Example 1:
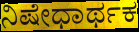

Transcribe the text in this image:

ನಿಷೇಧಾರ್ಥಕ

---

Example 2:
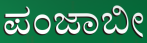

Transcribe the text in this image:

ಪಂಜಾಬೀ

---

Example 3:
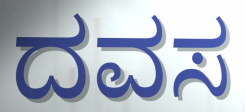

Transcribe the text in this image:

ದವಸ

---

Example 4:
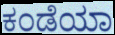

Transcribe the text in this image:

ಕಂಡೆಯಾ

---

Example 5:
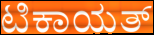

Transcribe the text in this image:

ಟಿಕಾಯತ್